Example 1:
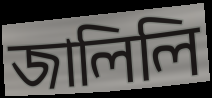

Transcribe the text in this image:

জালিলি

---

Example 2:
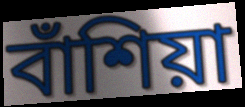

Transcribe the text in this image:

বাঁশিয়া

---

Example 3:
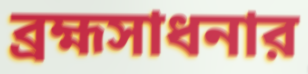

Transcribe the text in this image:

ব্রহ্মসাধনার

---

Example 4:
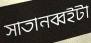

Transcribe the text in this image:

সাতানব্বইটা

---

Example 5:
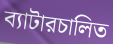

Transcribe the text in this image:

ব্যাটারচালিত